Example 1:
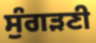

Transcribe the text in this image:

ਸੁੰਗੜਣੀ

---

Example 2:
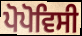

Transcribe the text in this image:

ਪੋਪੋਵਿਸੀ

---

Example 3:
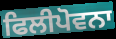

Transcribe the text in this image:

ਫਿਲੀਪੋਵਨਾ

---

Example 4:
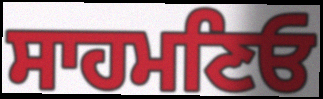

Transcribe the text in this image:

ਸਾਹਮਣਿਓ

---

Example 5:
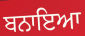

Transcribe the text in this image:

ਬਨਾਇਆ